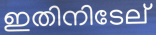
ഇതിനിടേല്